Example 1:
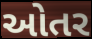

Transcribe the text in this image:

ઓતર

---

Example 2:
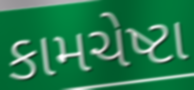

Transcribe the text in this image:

કામચેષ્ટા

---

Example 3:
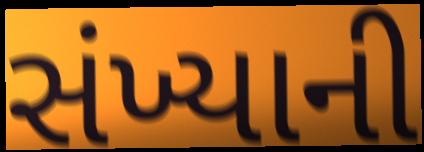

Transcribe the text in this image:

સંખ્યાની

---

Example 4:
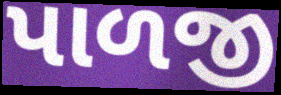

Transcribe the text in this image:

પાળજી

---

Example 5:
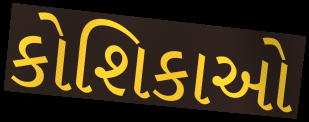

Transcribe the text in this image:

કોશિકાઓ